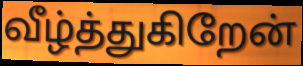
வீழ்த்துகிறேன்